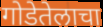
गोडेतेलाचा